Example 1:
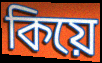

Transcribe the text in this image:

কিয়ে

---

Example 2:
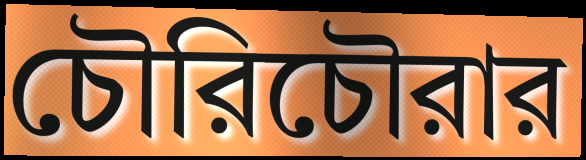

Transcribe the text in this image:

চৌরিচৌরার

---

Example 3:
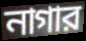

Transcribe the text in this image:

নাগার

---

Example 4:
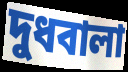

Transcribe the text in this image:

দুধবালা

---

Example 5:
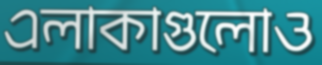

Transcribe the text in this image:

এলাকাগুলোও